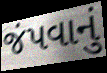
જંપવાનું